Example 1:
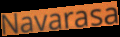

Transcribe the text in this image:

Navarasa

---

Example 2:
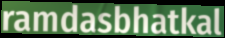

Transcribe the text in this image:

ramdasbhatkal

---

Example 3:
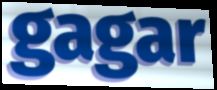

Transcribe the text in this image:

gagar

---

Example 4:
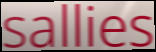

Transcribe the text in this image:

sallies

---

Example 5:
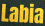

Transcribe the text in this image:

Labia